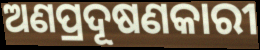
ଅଣପ୍ରଦୂଷଣକାରୀ